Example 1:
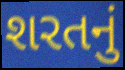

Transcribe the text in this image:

શરતનું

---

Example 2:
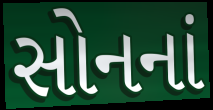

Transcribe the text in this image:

સોનનાં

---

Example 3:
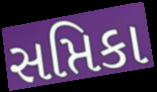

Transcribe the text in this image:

સપ્તિકા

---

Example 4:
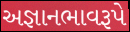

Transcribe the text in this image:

અજ્ઞાનભાવરૂપે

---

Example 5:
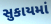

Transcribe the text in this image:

સુકાયમાં